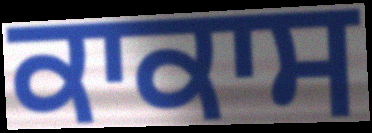
ਕਾਕਾਸ